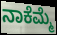
ನಾಕೆಮ್ಮೆ